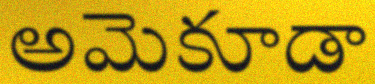
అమెకూడా